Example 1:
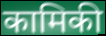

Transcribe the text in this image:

कामिकी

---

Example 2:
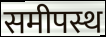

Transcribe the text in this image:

समीपस्थ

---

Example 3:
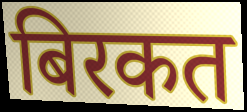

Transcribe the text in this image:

बिरकत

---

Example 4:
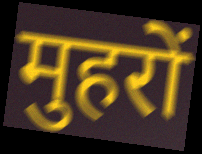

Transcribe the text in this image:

मुहरों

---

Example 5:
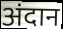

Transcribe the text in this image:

अंदान